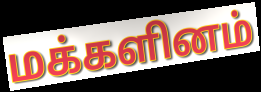
மக்களினம்